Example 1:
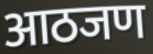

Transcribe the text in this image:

आठजण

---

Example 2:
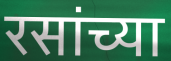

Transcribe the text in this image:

रसांच्या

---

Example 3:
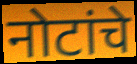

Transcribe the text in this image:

नोटांचे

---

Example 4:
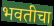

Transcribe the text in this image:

भवतीचा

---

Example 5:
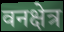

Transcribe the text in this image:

वनक्षेत्र